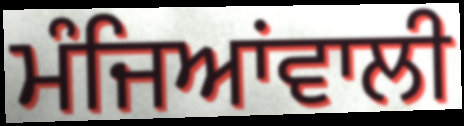
ਮੰਜਿਆਂਵਾਲੀ